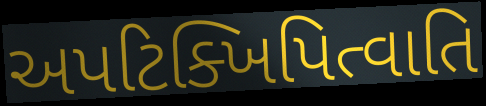
અપટિક્ખિપિત્વાતિ